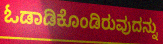
ಓಡಾಡಿಕೊಂಡಿರುವುದನ್ನು